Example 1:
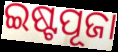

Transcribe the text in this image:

ଇଷ୍ଟପୂଜା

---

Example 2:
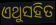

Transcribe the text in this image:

ଏଥୁସହିତ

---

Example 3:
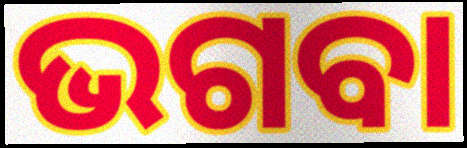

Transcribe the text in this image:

ଭଗବା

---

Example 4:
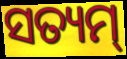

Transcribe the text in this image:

ସତ୍ୟମ୍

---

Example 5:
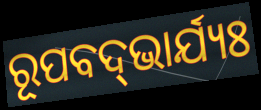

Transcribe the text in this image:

ରୂପବଦ୍‌ଭାର୍ଯ୍ୟଃ